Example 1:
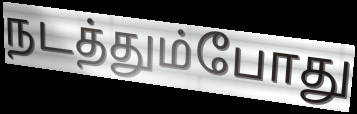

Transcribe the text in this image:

நடத்தும்போது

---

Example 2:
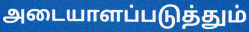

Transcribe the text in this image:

அடையாளப்படுத்தும்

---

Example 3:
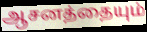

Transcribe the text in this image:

ஆசனத்தையும்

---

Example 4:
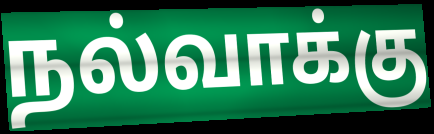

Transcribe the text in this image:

நல்வாக்கு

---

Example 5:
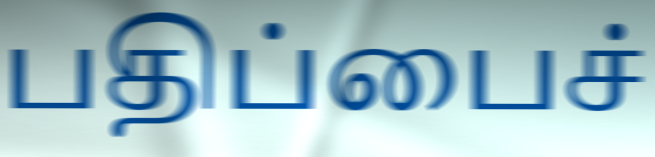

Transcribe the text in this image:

பதிப்பைச்